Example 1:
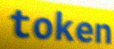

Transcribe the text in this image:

token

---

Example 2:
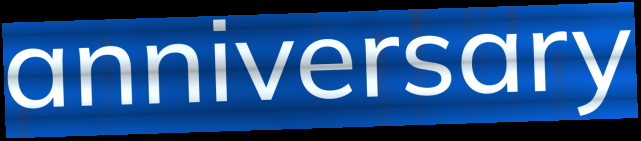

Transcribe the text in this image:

anniversary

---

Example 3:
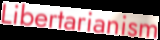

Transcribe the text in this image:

Libertarianism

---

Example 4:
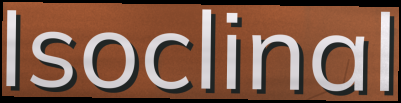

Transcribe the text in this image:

Isoclinal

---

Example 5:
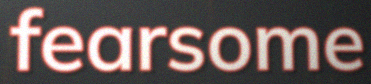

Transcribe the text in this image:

fearsome